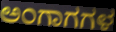
ಅಂಗಾಗಗಳ